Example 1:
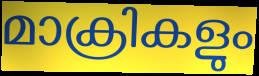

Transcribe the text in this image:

മാക്രികളും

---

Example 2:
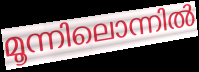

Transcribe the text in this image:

മൂന്നിലൊന്നിൽ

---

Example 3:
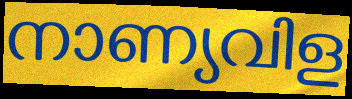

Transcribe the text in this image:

നാണ്യവിള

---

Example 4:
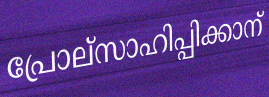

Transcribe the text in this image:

പ്രോല്സാഹിപ്പിക്കാന്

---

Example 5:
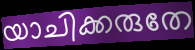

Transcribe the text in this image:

യാചിക്കരുതേ